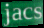
jacs